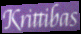
Krittibas